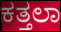
ಕತ್ತಲಾ